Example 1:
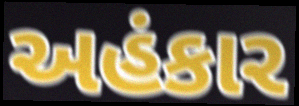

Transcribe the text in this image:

અહંકાર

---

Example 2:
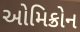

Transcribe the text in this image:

ઓમિક્રોન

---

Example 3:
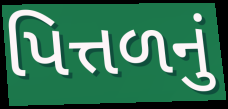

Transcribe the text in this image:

પિત્તળનું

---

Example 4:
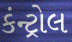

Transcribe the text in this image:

કંન્ટ્રોલ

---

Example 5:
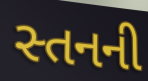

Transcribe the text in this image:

સ્તનની